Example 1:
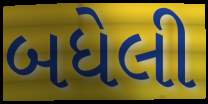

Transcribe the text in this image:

બધેલી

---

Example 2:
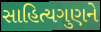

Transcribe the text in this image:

સાહિત્યગુણને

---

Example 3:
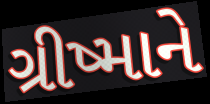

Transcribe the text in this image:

ગ્રીષ્માને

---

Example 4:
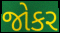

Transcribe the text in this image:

જોકર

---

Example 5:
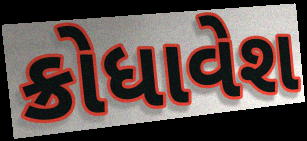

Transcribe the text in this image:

ક્રોધાવેશ